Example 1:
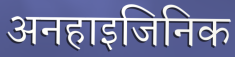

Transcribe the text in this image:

अनहाइजिनिक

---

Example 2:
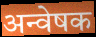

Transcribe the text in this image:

अन्वेषक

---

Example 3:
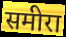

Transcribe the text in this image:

समीरा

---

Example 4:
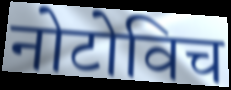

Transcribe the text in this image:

नोटोविच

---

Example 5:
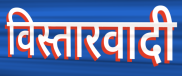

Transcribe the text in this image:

विस्तारवादी